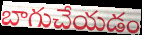
బాగుచేయడం